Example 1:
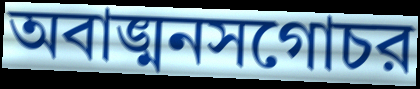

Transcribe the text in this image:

অবাঙ্মনসগোচর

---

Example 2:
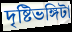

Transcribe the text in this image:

দৃষ্টিভঙ্গিটা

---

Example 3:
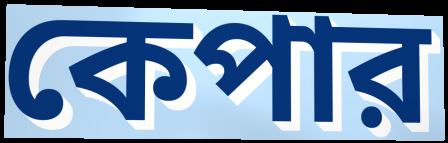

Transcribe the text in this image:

কেপার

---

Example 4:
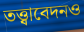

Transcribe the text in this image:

তত্ত্বাবেদনও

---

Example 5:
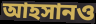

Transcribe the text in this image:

আহসানও